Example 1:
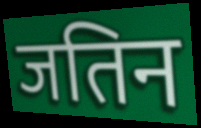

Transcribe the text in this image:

जतिन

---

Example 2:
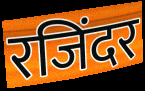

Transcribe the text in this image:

रजिंदर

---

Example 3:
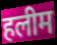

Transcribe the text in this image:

हलीम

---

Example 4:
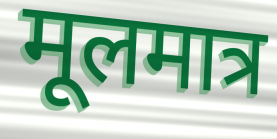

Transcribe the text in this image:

मूलमात्र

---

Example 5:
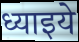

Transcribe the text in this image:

ध्याइये